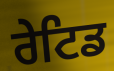
ਰੇਟਿਡ